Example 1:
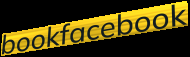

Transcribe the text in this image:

bookfacebook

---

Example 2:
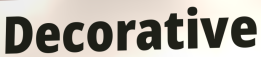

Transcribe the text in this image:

Decorative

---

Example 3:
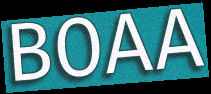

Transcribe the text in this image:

BOAA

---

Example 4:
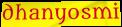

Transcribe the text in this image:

dhanyosmi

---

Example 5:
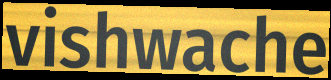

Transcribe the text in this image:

vishwache